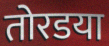
तोरडया